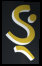
ઙ્